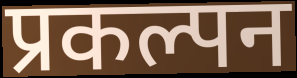
प्रकल्पन